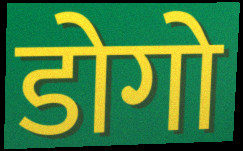
डोगो